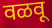
वळवू